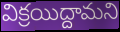
విక్రయిద్దామని